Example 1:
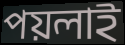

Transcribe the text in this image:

পয়লাই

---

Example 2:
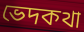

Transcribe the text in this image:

ভেদকথা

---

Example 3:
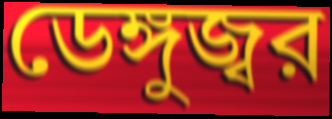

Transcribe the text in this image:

ডেঙ্গুজ্বর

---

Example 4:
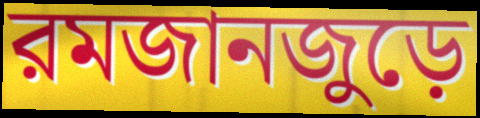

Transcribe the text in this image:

রমজানজুড়ে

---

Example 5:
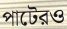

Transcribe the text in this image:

পাটেরও